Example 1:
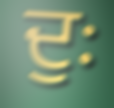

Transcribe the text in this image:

ਦੁਃ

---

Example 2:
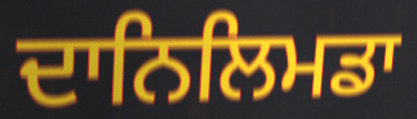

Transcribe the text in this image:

ਦਾਨਿਲਿਮਡਾ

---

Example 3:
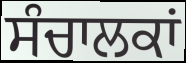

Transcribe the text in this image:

ਸੰਚਾਲਕਾਂ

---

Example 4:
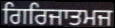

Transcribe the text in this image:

ਗਿਰਿਜਾਤਮਜ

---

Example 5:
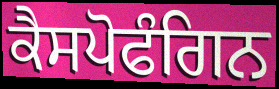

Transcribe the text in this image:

ਕੈਸਪੋਫੰਗਿਨ